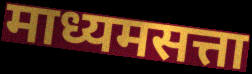
माध्यमसत्ता